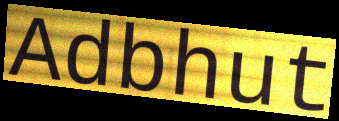
Adbhut